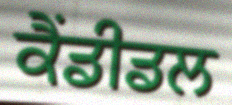
ਕੈਂਡੀਡਲ